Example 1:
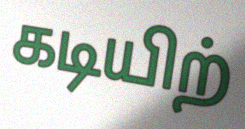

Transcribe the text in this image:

கடியிற்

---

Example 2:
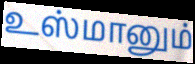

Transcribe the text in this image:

உஸ்மானும்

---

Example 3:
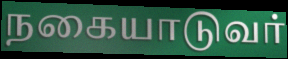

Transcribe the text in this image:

நகையாடுவர்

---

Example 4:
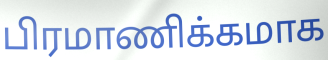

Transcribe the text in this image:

பிரமாணிக்கமாக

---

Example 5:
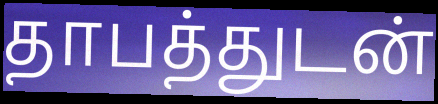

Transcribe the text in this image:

தாபத்துடன்